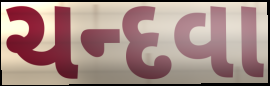
ચન્દવા